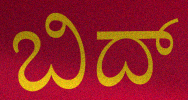
ಬಿದ್